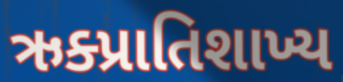
ઋક્પ્રાતિશાખ્ય